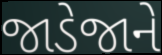
જાડેજાને